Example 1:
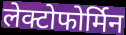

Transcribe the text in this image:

लेक्टोफोर्मिन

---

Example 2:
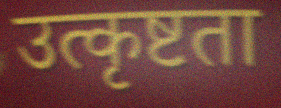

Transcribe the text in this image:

उत्कृष्टता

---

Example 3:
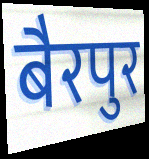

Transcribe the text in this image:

बैरपुर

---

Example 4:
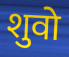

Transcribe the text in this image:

शुवो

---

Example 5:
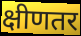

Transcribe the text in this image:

क्षीणतर